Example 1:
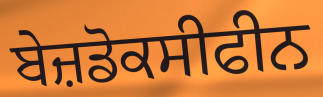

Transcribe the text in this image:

ਬੇਜ਼ਡੋਕਸੀਫੀਨ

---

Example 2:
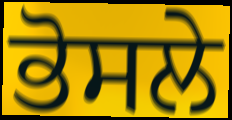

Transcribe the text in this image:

ਭੋਸਲੇ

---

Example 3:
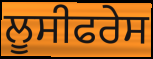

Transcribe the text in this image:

ਲੂਸੀਫਰੇਸ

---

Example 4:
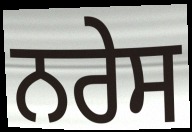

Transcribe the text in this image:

ਨਰੇਸ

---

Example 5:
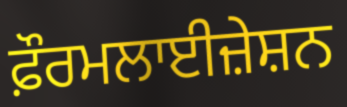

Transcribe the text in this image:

ਫ਼ੌਰਮਲਾਈਜ਼ੇਸ਼ਨ